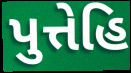
પુત્તેહિ